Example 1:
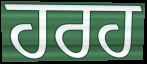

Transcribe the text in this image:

ਹਰਹ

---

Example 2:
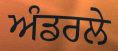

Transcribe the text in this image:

ਅੰਡਰਲੇ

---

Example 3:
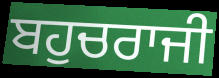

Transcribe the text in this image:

ਬਹੁਚਰਾਜੀ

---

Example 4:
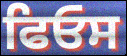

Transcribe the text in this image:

ਫਿਓਸ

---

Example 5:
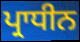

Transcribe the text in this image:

ਪ੍ਰਾਧੀਨ